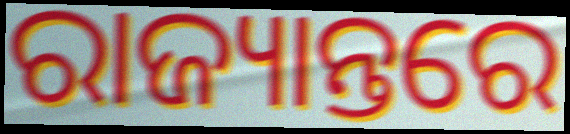
ରାଜ୍ୟାନ୍ତରେ